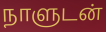
நாளுடன்